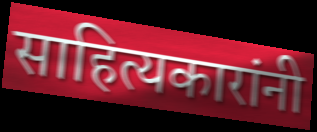
साहित्यकारांनी